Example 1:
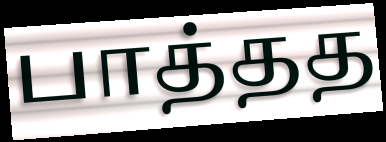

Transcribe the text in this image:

பாத்தத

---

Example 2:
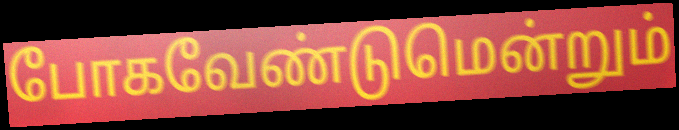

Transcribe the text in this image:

போகவேண்டுமென்றும்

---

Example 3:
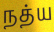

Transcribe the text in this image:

நத்ய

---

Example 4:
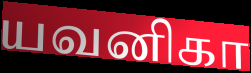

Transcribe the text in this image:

யவனிகா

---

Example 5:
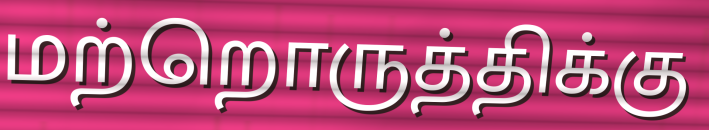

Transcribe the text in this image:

மற்றொருத்திக்கு